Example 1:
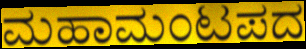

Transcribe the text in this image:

ಮಹಾಮಂಟಪದ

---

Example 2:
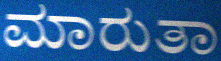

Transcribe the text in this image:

ಮಾರುತಾ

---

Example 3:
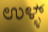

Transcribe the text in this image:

ಉಳ್ಳ್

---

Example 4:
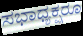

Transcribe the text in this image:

ಸಭಾಧ್ಯಕ್ಷರೂ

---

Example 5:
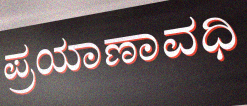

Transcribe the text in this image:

ಪ್ರಯಾಣಾವಧಿ